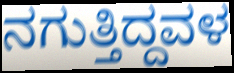
ನಗುತ್ತಿದ್ದವಳ